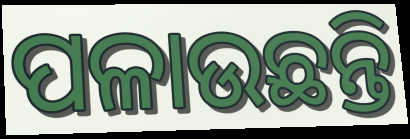
ପଳାଉଛନ୍ତି